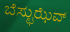
ಬೆಸ್ಟುಝೆವ್